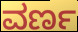
ವರ್ಣ